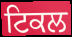
ਟਿਕਲ